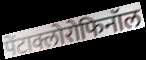
पेंटाक्लोरोफिनॉल